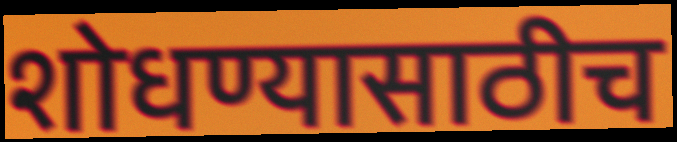
शोधण्यासाठीच